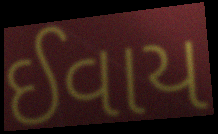
ઈવાય